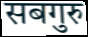
सबगुरु